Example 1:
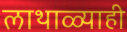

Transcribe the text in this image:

लाथाळ्याही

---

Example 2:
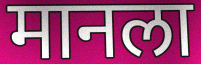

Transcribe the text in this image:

मानला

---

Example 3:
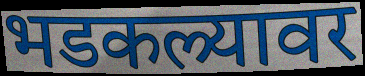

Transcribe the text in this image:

भडकल्यावर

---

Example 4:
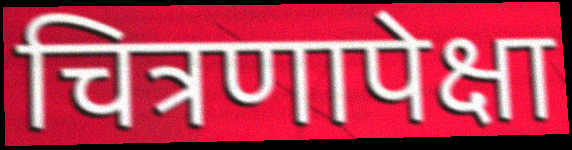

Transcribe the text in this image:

चित्रणापेक्षा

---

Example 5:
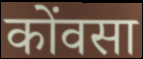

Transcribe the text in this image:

कोंवसा